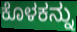
ಕೊಳಕನ್ನು